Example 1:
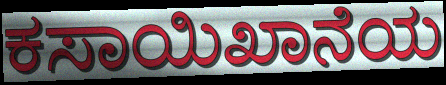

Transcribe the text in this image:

ಕಸಾಯಿಖಾನೆಯ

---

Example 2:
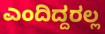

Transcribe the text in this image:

ಎಂದಿದ್ದರಲ್ಲ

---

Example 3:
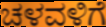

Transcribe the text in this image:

ಚಳವಳಿಗೆ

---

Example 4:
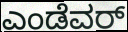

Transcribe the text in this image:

ಎಂಡೆವರ್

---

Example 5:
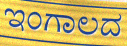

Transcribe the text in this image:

ಇಂಗಾಲದ